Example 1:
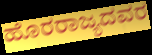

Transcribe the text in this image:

ಹೊರರಾಜ್ಯದವರ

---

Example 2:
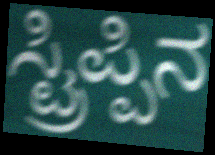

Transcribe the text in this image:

ಸ್ಟ್ರಿಪ್ಪಿನ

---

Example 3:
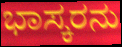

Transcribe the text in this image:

ಭಾಸ್ಕರನು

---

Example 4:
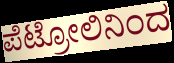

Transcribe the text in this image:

ಪೆಟ್ರೋಲಿನಿಂದ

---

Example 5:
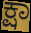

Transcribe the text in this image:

ಕ್ಷಾ